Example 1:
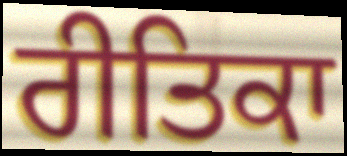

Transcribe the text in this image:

ਰੀਤਿਕਾ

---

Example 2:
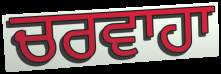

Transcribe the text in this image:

ਚਰਵਾਹਾ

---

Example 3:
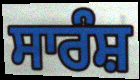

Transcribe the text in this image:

ਸਾਰੰਸ਼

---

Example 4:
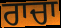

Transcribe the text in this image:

ਰਾਚਾ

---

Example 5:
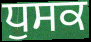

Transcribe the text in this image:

ਧੁਸਕ